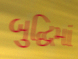
બુદ્ધિમાં